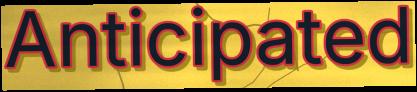
Anticipated